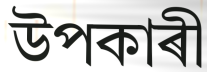
উপকাৰী